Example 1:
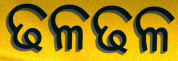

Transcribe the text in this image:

ଢଳଢଳ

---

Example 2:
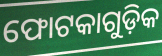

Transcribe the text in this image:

ଫୋଟକାଗୁଡ଼ିକ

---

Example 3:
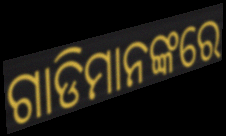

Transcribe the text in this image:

ଗାଡିମାନଙ୍କରେ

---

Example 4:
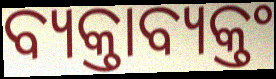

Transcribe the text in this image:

ବ୍ୟକ୍ତାବ୍ୟକ୍ତଂ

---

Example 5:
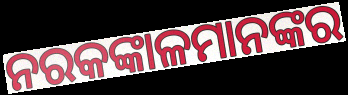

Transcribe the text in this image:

ନରକଙ୍କାଳମାନଙ୍କର